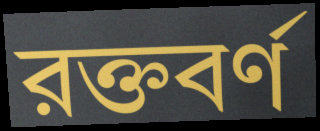
রক্তবর্ণ